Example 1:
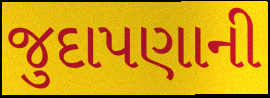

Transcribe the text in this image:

જુદાપણાની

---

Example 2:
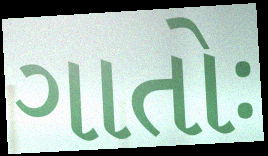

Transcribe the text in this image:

ગાતોઃ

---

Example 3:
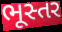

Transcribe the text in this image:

ભૂસ્તર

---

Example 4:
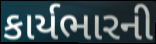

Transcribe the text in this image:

કાર્યભારની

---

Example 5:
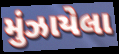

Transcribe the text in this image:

મુંઝાયેલા